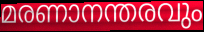
മരണാനന്തരവും